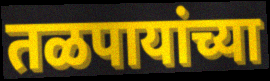
तळपायांच्या